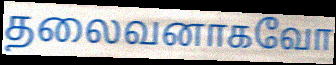
தலைவனாகவோ